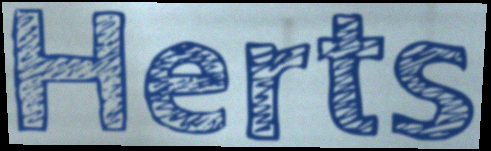
Herts